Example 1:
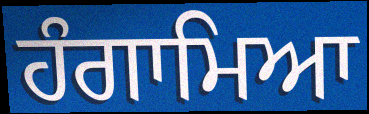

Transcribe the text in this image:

ਹੰਗਾਮਿਆ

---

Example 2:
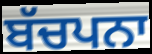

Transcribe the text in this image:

ਬੱਚਪਨਾ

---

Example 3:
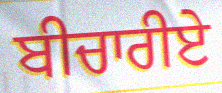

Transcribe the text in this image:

ਬੀਚਾਰੀਏ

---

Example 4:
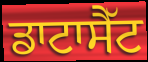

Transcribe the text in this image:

ਡਾਟਾਸੈੱਟ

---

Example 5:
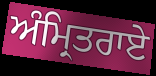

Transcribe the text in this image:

ਅੰਮ੍ਰਿਤਰਾਏ